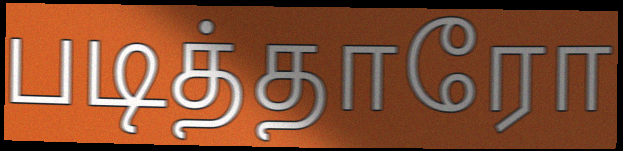
படித்தாரோ